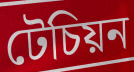
টেচিয়ন